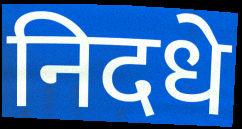
निदधे